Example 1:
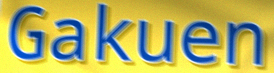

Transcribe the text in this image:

Gakuen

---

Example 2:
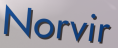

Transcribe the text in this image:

Norvir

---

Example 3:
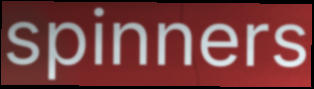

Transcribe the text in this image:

spinners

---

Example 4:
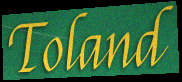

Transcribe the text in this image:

Toland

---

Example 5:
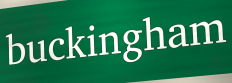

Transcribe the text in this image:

buckingham